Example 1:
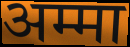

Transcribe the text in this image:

अम्‍मा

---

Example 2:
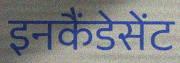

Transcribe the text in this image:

इनकैंडेसेंट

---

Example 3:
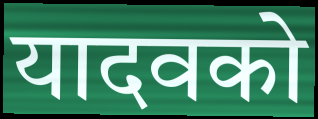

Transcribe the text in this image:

यादवको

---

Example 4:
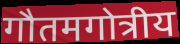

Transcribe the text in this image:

गौतमगोत्रीय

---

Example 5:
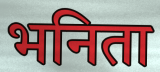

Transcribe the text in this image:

भनिता